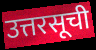
उत्तरसूची